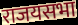
राजयसभा